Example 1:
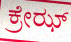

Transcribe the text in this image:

ಕ್ರೇಝ್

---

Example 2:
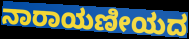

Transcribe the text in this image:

ನಾರಾಯಣೀಯದ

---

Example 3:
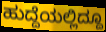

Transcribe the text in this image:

ಹುದ್ದೆಯಲ್ಲಿದ್ದೂ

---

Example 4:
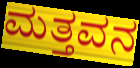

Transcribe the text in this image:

ಮತ್ತವನ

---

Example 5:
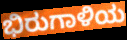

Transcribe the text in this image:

ಭಿರುಗಾಳಿಯ